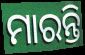
ମାରନ୍ତି